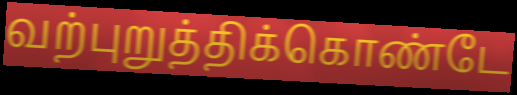
வற்புறுத்திக்கொண்டே